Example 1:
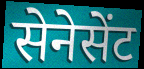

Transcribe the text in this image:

सेनेसेंट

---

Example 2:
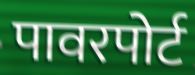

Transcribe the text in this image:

पावरपोर्ट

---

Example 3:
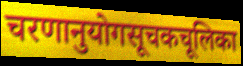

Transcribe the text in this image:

चरणानुयोगसूचकचूलिका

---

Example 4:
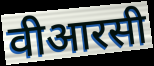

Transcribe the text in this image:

वीआरसी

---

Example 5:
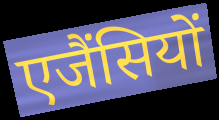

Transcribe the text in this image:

एजैंसियों